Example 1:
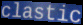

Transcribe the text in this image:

clastic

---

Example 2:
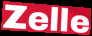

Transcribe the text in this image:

Zelle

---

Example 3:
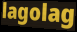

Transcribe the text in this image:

lagolag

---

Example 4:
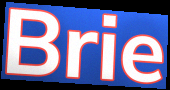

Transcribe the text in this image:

Brie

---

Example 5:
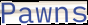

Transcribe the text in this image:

Pawns